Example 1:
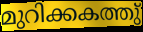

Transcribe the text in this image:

മുറിക്കകത്തു്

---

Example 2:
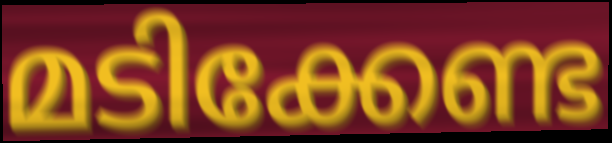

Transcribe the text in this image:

മടിക്കേണ്ട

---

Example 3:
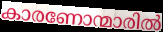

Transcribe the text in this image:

കാരണോന്മാരിൽ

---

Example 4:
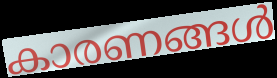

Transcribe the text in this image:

കാരണങ്ങൾ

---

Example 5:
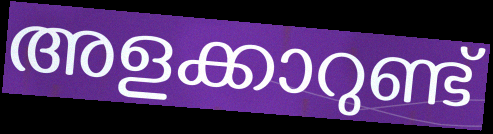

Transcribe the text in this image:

അളക്കാറുണ്ട്